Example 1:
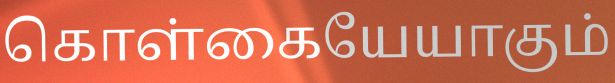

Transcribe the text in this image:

கொள்கையேயாகும்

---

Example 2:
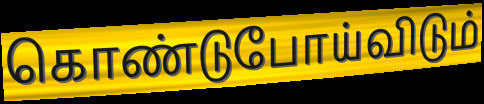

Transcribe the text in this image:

கொண்டுபோய்விடும்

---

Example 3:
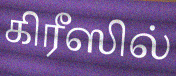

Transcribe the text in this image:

கிரீஸில்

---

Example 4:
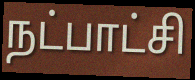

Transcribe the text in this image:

நட்பாட்சி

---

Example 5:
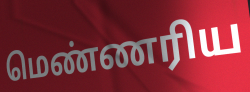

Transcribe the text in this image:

மெண்ணரிய